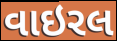
વાઇરલ